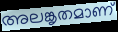
അലങ്കൃതമാണ്